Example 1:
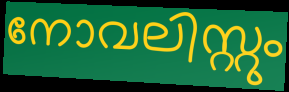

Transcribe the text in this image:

നോവലിസ്റ്റും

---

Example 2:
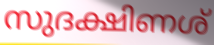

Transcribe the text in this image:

സുദക്ഷിണശ്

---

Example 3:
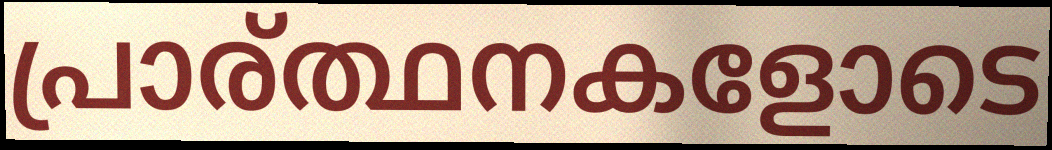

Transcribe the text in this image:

പ്രാര്ത്ഥനകളോടെ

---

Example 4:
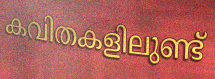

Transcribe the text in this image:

കവിതകളിലുണ്ട്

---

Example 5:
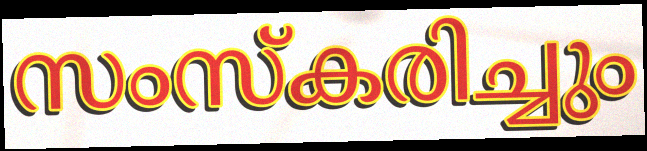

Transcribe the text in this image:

സംസ്കരിച്ചും